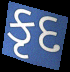
કૃદ